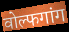
वोल्फगांग